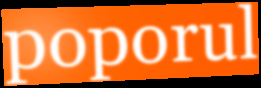
poporul